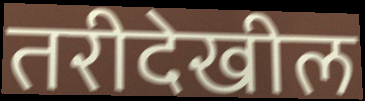
तरीदेखील